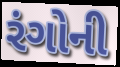
રંગોની